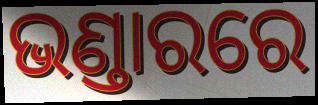
ଭଣ୍ଡାରରେ